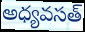
అధ్యవసత్